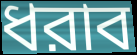
ধরাব